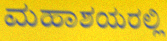
ಮಹಾಶಯರಲ್ಲಿ